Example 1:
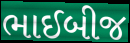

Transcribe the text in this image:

ભાઈબીજ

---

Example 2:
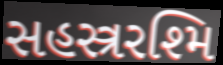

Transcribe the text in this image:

સહસ્ત્રરશ્મિ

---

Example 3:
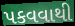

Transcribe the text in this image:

પકવવાથી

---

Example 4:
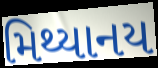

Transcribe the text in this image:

મિથ્યાનય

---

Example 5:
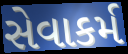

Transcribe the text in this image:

સેવાકર્મ